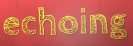
echoing